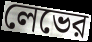
লেভের